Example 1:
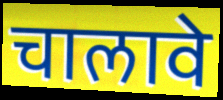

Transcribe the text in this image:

चालावे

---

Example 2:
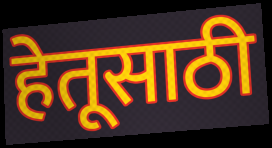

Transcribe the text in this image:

हेतूसाठी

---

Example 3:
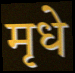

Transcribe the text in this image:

मृधे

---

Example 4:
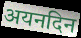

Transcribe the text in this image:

अयनदिन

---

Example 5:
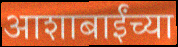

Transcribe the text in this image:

आशाबाईंच्या